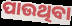
ପାଉଥିବା